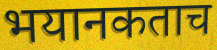
भयानकताच